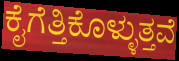
ಕೈಗೆತ್ತಿಕೊಳ್ಳುತ್ತವೆ